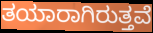
ತಯಾರಾಗಿರುತ್ತವೆ